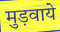
मुड़वाये